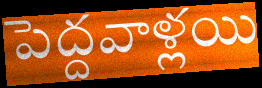
పెద్దవాళ్లయి